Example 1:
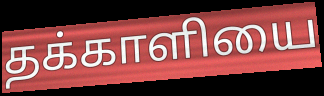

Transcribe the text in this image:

தக்காளியை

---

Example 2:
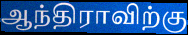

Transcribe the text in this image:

ஆந்திராவிற்கு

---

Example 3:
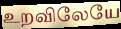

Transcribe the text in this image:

உறவிலேயே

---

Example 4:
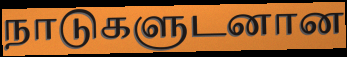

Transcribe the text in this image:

நாடுகளுடனான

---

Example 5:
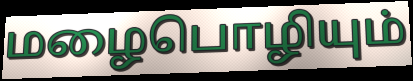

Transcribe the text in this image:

மழைபொழியும்